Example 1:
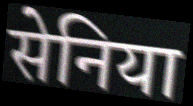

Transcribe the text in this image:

सेनिया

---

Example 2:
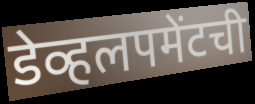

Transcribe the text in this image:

डेव्हलपमेंटची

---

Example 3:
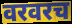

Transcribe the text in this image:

वरवरच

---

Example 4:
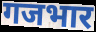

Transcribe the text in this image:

गजभार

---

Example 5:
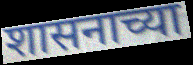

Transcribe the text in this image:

शासनाच्या